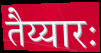
तैय्यारः